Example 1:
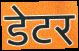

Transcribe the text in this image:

डेटर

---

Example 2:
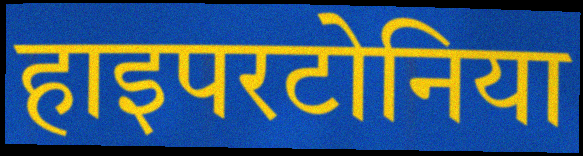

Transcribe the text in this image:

हाइपरटोनिया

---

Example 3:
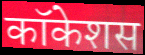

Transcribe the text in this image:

कॉकेशस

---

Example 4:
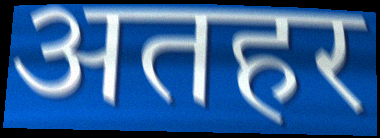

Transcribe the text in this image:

अतहर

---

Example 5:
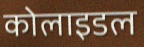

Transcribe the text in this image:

कोलाइडल